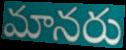
మానరు